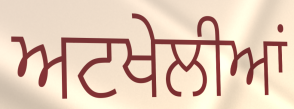
ਅਟਖੇਲੀਆਂ